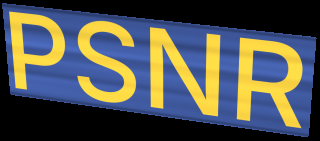
PSNR